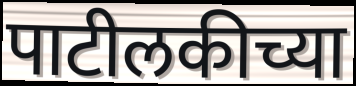
पाटीलकीच्या